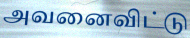
அவனைவிட்டு